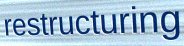
restructuring